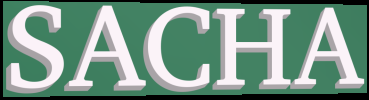
SACHA